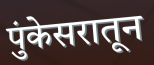
पुंकेसरातून